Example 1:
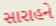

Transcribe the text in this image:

સારાહને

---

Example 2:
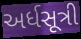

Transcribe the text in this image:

અર્ધસૂત્રી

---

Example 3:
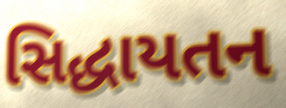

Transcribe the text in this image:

સિદ્ધાયતન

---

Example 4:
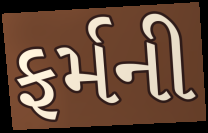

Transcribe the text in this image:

ફર્મની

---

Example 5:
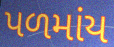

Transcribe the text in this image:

પળમાંય